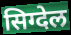
सिग्देल